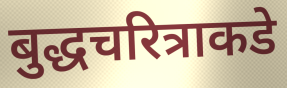
बुद्धचरित्राकडे